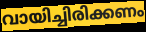
വായിച്ചിരിക്കണം